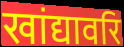
खांद्यावरि